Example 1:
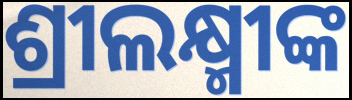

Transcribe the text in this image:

ଶ୍ରୀଲକ୍ଷ୍ମୀଙ୍କ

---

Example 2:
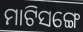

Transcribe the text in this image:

ମାଟିସଙ୍ଗେ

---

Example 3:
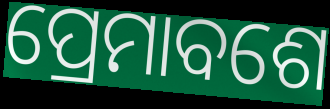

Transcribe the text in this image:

ପ୍ରେମାବଶେ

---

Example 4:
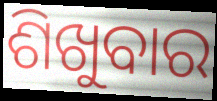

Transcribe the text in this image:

ଶିଖୁବାର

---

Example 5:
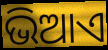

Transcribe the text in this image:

ଭିଆଏ